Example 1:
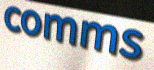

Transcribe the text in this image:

comms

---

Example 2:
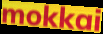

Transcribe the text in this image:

mokkai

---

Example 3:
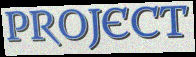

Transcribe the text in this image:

PROJECT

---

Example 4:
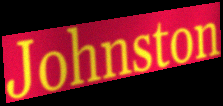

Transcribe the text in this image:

Johnston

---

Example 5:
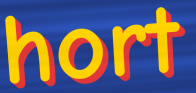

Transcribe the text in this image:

hort